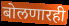
बोलणारही